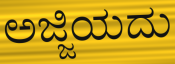
ಅಜ್ಜಿಯದು